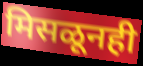
मिसळूनही